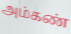
அம்கண்